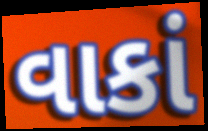
વાકાં